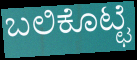
ಬಲಿಕೊಟ್ಟೆ